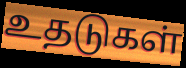
உதடுகள்